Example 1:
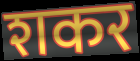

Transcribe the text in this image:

शकर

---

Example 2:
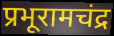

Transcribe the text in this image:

प्रभूरामचंद्र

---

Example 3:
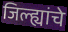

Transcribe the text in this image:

जिल्ह्यांचे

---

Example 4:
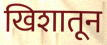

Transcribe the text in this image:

खिशातून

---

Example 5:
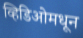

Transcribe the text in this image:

व्हिडिओमधून